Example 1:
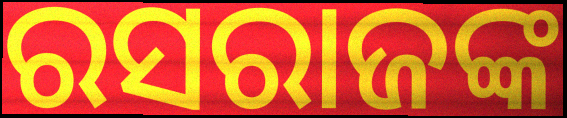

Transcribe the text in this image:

ରସରାଜଙ୍କ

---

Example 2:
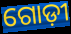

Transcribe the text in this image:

ଗୋଡ଼ୀ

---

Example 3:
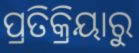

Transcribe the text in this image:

ପ୍ରତିକ୍ରିୟାରୁ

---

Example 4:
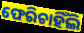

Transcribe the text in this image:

ଫେରିଚାହିଁଲି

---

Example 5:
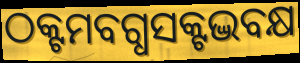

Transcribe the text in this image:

ଠକ୍ଟମବଗ୍ଧସକ୍ଟଦ୍ଭବକ୍ଷ